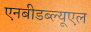
एनबीडब्ल्यूएल